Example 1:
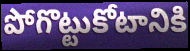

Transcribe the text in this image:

పోగొట్టుకోటానికి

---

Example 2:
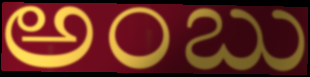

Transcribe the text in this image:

అంబు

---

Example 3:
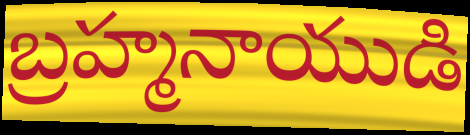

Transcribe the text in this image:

బ్రహ్మనాయుడి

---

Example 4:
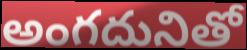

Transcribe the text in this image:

అంగదునితో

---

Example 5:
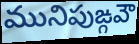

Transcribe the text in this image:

మునిపుఙ్గవౌ